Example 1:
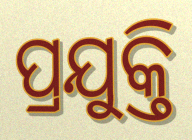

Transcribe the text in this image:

ପ୍ରଯୁକ୍ତି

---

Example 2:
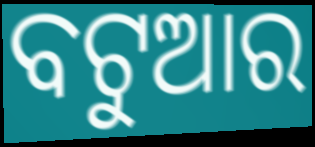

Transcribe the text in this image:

ବଟୁଆର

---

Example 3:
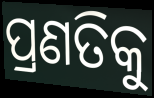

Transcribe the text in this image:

ପ୍ରଣତିକୁ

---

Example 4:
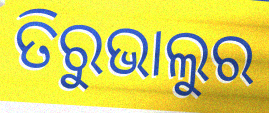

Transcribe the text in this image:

ତିରୁଭାଲୁର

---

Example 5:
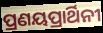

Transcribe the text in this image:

ପ୍ରଣୟପ୍ରାର୍ଥିନୀ